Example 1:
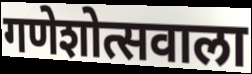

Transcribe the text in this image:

गणेशोत्सवाला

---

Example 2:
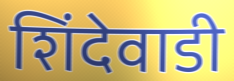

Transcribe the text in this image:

शिंदेवाडी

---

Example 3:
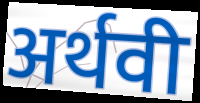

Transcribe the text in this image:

अर्थवी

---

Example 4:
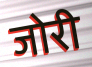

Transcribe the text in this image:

जोरी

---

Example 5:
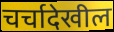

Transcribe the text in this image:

चर्चादेखील